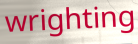
wrighting